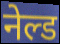
नेल्ड